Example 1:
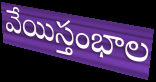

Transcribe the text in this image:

వేయిస్తంభాల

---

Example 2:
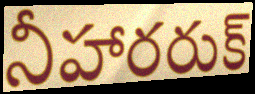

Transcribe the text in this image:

నీహారరుక్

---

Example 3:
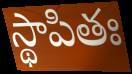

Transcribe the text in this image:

స్థాపితః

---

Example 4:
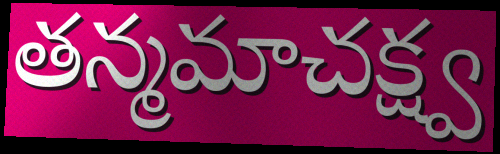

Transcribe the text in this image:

తన్మమాచక్ష్వ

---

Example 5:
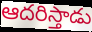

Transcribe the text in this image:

ఆదరిస్తాడు